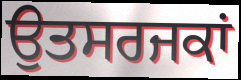
ਉਤਸਰਜਕਾਂ